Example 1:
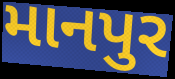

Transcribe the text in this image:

માનપુર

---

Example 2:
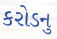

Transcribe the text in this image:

કરોડનુ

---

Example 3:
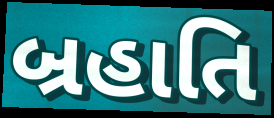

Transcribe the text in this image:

બ્રહાતિ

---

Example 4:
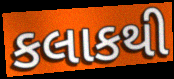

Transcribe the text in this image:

કલાકથી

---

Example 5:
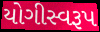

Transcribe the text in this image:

યોગીસ્વરૂપ